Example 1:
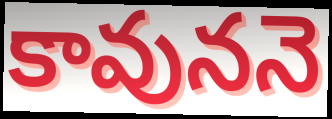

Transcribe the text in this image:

కావుననె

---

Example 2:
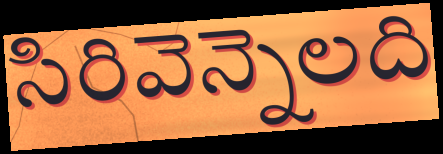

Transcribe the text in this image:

సిరివెన్నెలది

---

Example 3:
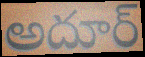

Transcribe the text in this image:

అదూర్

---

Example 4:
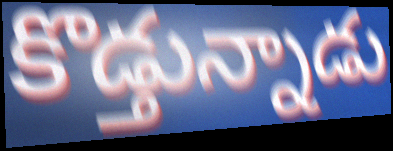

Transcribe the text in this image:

కొడ్తున్నాడు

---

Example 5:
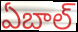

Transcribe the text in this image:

ఏబాల్